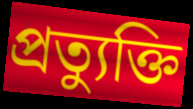
প্রত্যুক্তি